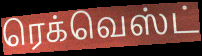
ரெக்வெஸ்ட்